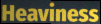
Heaviness